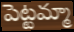
పెట్టమ్మా